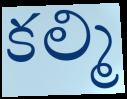
కల్మి